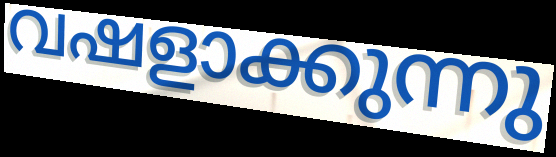
വഷളാക്കുന്നു